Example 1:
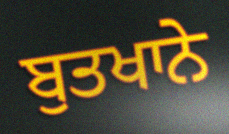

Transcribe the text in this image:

ਬੁਤਖਾਨੇ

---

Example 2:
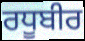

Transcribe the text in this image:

ਰਧੂਬੀਰ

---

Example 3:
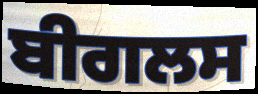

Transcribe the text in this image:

ਬੀਗਲਸ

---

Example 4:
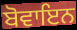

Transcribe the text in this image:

ਬੋਵਾਇਨ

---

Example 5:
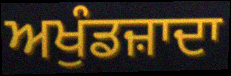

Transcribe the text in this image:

ਅਖੁੰਡਜ਼ਾਦਾ